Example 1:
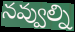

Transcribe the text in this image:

నవ్వుల్ని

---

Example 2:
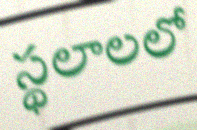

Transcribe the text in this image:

స్థలాలలో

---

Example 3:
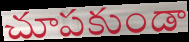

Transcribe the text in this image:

చూపకుండా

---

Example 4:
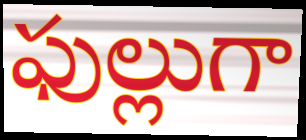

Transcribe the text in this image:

ఫుల్లుగా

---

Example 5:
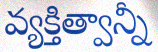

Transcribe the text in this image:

వ్యక్తిత్వాన్నీ